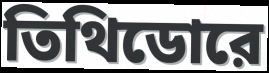
তিথিডোরে